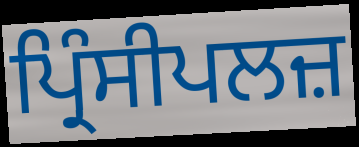
ਪ੍ਰਿੰਸੀਪਲਜ਼